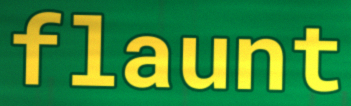
flaunt